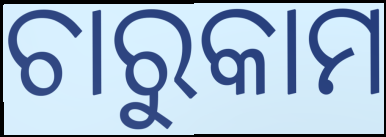
ଚାରୁକାମ